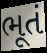
ભૂતં